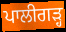
ਪਾਲੀਗੜ੍ਹ